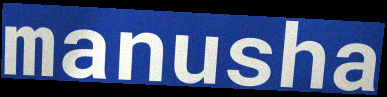
manusha